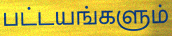
பட்டயங்களும்